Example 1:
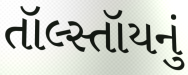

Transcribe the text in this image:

તૉલ્સ્તૉયનું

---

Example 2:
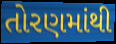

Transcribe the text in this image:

તોરણમાંથી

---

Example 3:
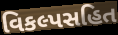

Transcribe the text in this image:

વિકલ્પસહિત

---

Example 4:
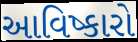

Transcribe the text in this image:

આવિષ્કારો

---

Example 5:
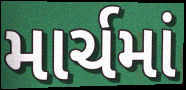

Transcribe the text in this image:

માર્ચમાં